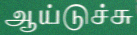
ஆய்டுச்சு